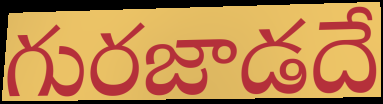
గురజాడదే